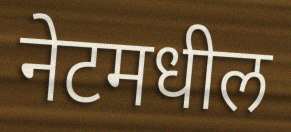
नेटमधील